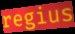
regius